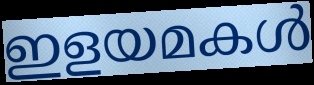
ഇളയമകൾ